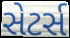
સેટર્સ